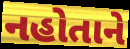
નહોતાને